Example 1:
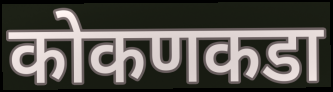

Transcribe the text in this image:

कोकणकडा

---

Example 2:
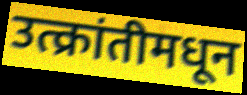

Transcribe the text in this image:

उत्क्रांतीमधून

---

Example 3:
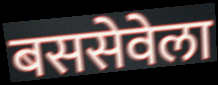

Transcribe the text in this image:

बससेवेला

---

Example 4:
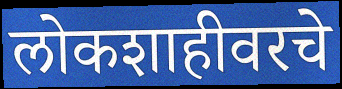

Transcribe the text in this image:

लोकशाहीवरचे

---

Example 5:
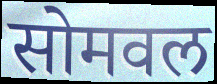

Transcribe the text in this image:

सोमवल